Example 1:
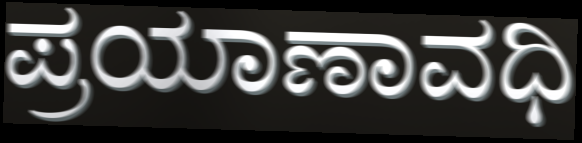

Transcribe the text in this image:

ಪ್ರಯಾಣಾವಧಿ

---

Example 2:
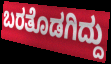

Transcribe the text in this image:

ಬರತೊಡಗಿದ್ದು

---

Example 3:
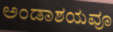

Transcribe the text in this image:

ಅಂಡಾಶಯವೂ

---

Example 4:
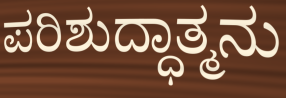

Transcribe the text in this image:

ಪರಿಶುದ್ಧಾತ್ಮನು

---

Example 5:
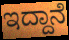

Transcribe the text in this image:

ಇದ್ದಾನೆ